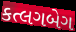
કત્લગબેગ